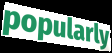
popularly